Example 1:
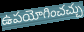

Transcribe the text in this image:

ఉపయోగించచ్చు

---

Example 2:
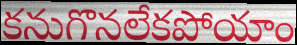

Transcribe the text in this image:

కనుగొనలేకపోయాం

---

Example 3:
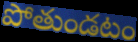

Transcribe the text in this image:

పోతుండటం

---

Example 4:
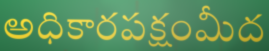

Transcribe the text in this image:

అధికారపక్షంమీద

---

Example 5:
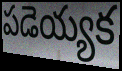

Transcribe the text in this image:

పడెయ్యక